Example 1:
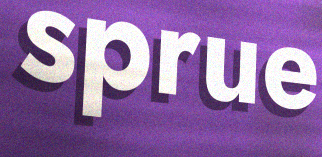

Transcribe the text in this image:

sprue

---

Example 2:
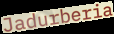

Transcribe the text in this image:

Jadurberia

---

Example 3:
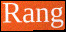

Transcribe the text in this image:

Rang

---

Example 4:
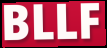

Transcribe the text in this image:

BLLF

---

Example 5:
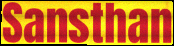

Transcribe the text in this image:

Sansthan